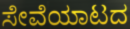
ಸೇವೆಯಾಟದ